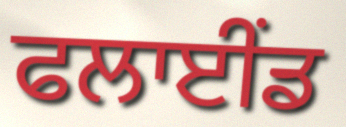
ਫਲਾਈਂਡ